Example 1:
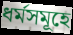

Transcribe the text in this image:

ধর্মসমূহে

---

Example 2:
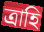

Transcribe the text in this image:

ত্রাহি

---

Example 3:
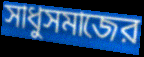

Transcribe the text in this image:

সাধুসমাজের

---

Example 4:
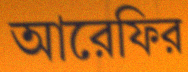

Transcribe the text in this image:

আরেফির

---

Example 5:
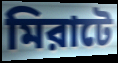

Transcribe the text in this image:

মিরাটে